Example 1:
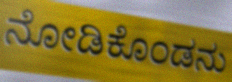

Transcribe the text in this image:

ನೋಡಿಕೊಂಡನು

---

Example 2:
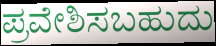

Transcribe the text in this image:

ಪ್ರವೇಶಿಸಬಹುದು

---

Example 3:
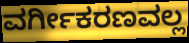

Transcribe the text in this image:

ವರ್ಗೀಕರಣವಲ್ಲ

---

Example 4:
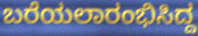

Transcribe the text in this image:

ಬರೆಯಲಾರಂಭಿಸಿದ್ದ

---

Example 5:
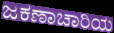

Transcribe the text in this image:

ಜಕಣಾಚಾರಿಯ